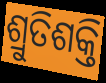
ଶ୍ରୁତିଶକ୍ତି